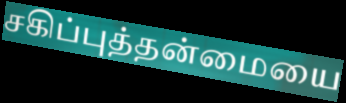
சகிப்புத்தன்மையை